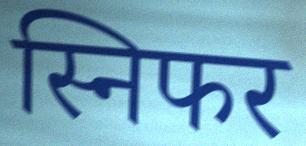
स्निफर